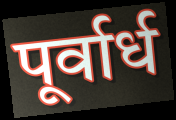
पूर्वार्ध